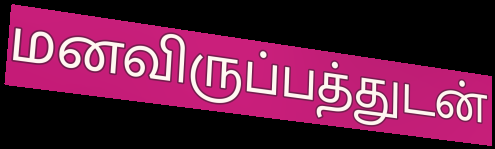
மனவிருப்பத்துடன்